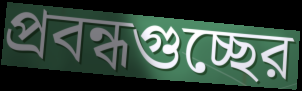
প্রবন্ধগুচ্ছের